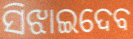
ସିଝାଇଦେବ